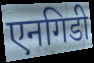
एनगिडी